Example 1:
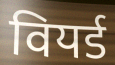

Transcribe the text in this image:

वियर्ड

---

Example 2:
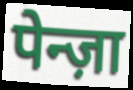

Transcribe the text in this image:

पेन्ज़ा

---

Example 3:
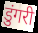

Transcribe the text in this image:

डुंगरी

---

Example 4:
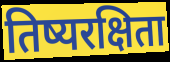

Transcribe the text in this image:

तिष्यरक्षिता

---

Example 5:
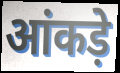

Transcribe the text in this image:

आंकड़े